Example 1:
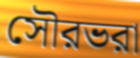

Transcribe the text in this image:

সৌরভরা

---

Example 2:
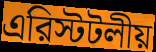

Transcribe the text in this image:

এরিস্টটলীয়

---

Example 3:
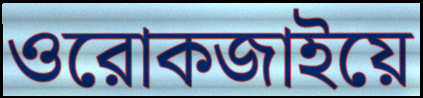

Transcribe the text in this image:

ওরোকজাইয়ে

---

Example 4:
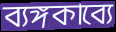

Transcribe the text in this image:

ব্যঙ্গকাব্যে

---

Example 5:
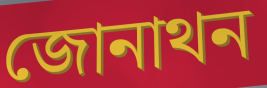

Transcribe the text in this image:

জোনাথন